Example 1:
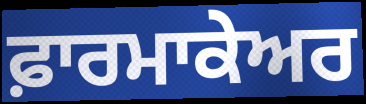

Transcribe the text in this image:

ਫ਼ਾਰਮਾਕੇਅਰ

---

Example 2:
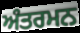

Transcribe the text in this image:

ਅੰਤਰਮਨ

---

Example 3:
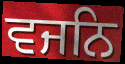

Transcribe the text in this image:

ਵਜਨਿ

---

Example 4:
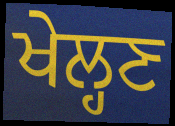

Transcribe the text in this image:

ਖੇਲ੍ਹਣ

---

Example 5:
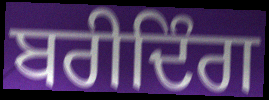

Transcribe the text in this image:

ਬਰੀਦਿੰਗ